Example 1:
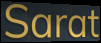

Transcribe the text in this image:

Sarat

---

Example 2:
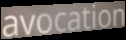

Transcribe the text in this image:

avocation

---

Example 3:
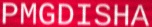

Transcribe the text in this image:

PMGDISHA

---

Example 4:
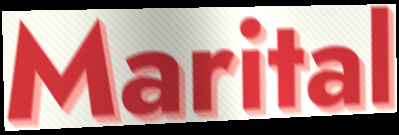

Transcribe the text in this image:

Marital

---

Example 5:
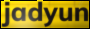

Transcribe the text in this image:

jadyun